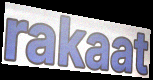
rakaat